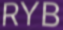
RYB